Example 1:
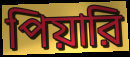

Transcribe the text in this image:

পিয়ারি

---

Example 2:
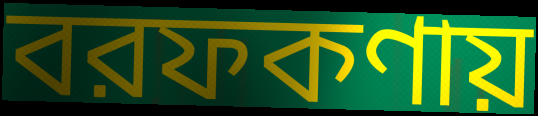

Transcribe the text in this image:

বরফকণায়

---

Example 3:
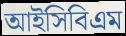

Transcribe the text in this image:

আইসিবিএম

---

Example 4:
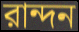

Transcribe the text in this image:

রান্দন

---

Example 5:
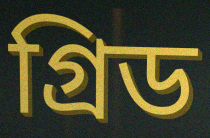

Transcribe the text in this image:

গ্রিড